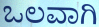
ಒಲವಾಗಿ